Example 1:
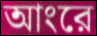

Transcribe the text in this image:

আংরে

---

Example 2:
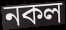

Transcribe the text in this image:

নকল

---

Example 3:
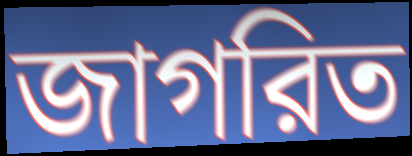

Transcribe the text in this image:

জাগরিত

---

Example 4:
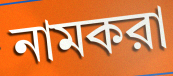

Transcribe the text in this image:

নামকরা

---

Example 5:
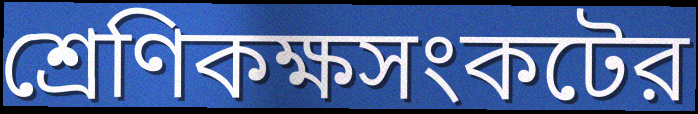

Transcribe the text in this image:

শ্রেণিকক্ষসংকটের